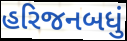
હરિજનબધું